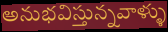
అనుభవిస్తున్నవాళ్ళు